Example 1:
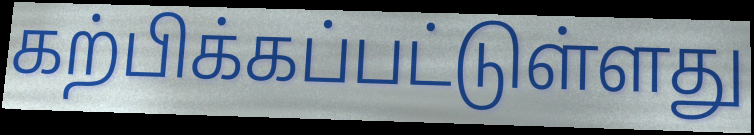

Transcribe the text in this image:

கற்பிக்கப்பட்டுள்ளது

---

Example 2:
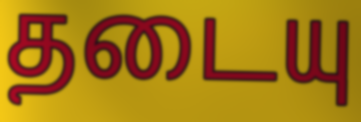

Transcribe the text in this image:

தடையு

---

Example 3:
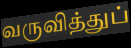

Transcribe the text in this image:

வருவித்துப்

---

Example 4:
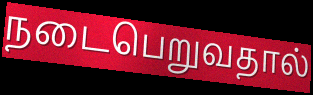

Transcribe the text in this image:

நடைபெறுவதால்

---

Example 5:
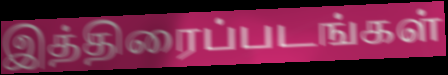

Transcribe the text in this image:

இத்திரைப்படங்கள்